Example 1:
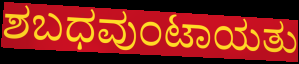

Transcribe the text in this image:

ಶಬಧವುಂಟಾಯತು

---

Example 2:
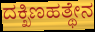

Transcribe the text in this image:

ದಕ್ಖಿಣಹತ್ಥೇನ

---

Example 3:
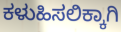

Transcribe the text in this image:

ಕಳುಹಿಸಲಿಕ್ಕಾಗಿ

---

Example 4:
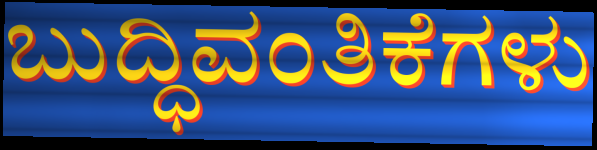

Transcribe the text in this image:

ಬುದ್ಧಿವಂತಿಕೆಗಳು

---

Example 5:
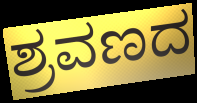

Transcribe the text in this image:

ಶ್ರವಣದ